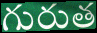
గురుత